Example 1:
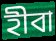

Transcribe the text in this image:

হীবা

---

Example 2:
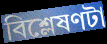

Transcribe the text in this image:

বিশ্লেষণটা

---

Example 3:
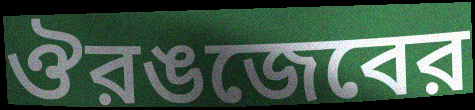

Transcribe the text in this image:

ঔরঙজেবের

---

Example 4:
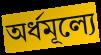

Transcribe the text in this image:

অর্ধমূল্যে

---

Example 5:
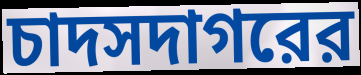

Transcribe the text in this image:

চাদসদাগরের